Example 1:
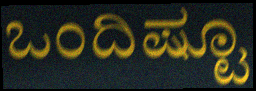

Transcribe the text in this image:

ಒಂದಿಷ್ಟೂ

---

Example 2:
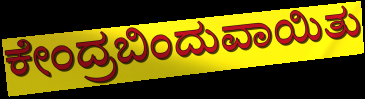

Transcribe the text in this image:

ಕೇಂದ್ರಬಿಂದುವಾಯಿತು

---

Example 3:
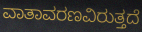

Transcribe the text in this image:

ವಾತಾವರಣವಿರುತ್ತದೆ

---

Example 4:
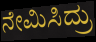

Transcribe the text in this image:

ನೇಮಿಸಿದ್ರು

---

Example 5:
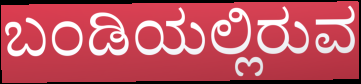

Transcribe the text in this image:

ಬಂಡಿಯಲ್ಲಿರುವ